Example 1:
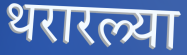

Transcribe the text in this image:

थरारल्या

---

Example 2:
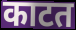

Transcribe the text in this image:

काटत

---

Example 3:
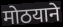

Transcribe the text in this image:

मोठयाने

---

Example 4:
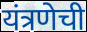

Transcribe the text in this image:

यंत्रणेची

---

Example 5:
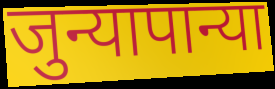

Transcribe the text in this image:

जुन्यापान्या